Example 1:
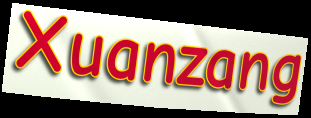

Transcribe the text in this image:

Xuanzang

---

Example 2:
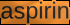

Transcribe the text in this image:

aspirin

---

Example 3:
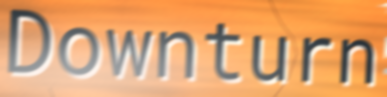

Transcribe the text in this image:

Downturn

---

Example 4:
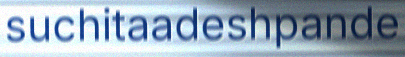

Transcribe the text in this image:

suchitaadeshpande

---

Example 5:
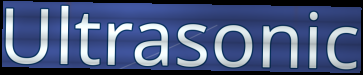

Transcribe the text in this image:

Ultrasonic